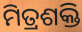
ମିତ୍ରଶକ୍ତି